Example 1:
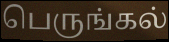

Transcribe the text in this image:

பெருங்கல்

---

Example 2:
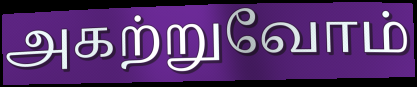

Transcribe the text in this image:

அகற்றுவோம்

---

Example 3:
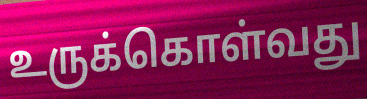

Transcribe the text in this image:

உருக்கொள்வது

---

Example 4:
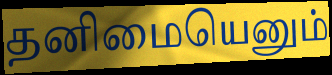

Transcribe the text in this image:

தனிமையெனும்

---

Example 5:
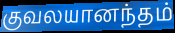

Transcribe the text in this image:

குவலயானந்தம்